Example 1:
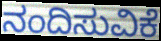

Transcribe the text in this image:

ನಂದಿಸುವಿಕೆ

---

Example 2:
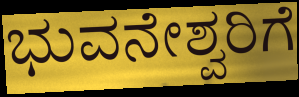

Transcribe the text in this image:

ಭುವನೇಶ್ವರಿಗೆ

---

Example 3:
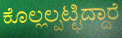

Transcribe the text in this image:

ಕೊಲ್ಲಲ್ಪಟ್ಟಿದ್ದಾರೆ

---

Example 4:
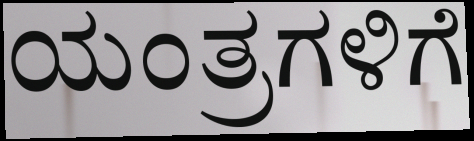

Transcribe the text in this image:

ಯಂತ್ರಗಳಿಗೆ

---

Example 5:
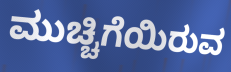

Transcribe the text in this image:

ಮುಚ್ಚಿಗೆಯಿರುವ